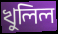
খুলিল